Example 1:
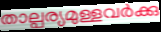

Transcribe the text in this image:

താല്പര്യമുള്ളവർക്കു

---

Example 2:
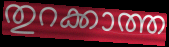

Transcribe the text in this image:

തുറക്കാത്ത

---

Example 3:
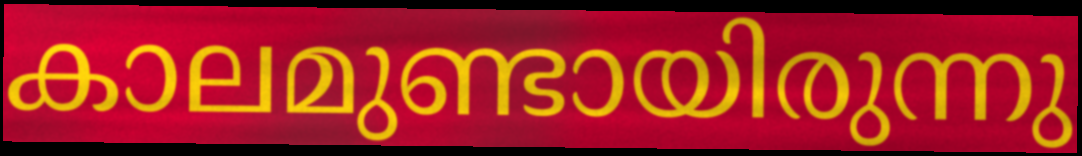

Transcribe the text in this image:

കാലമുണ്ടായിരുന്നു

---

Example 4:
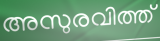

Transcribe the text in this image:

അസുരവിത്ത്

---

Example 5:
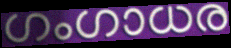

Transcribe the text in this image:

ഗംഗാധര